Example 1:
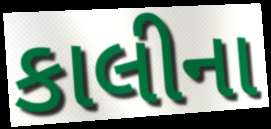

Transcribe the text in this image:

કાલીના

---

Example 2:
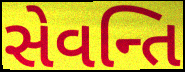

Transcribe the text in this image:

સેવન્તિ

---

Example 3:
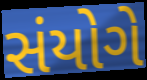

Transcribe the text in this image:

સંયોગે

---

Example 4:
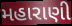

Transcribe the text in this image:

મહારાણી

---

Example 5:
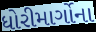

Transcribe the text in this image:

ધોરીમાર્ગોના